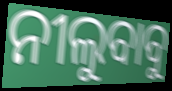
ନୀଲୁବାବୁ